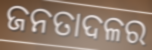
ଜନତାଦଳର